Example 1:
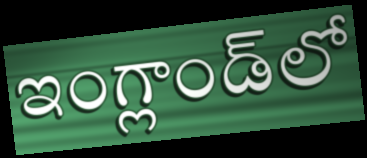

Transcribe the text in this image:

ఇంగ్లాండ్‌లో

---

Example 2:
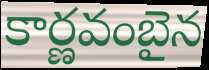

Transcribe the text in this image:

కార్ణవంబైన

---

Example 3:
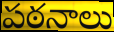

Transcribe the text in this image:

పఠనాలు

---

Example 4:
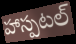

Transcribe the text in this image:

హాస్పటల్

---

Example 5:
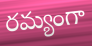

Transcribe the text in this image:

రమ్యంగా